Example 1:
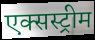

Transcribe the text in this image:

एक्सस्ट्रीम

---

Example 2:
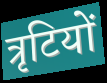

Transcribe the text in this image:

त्रृटियों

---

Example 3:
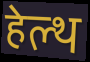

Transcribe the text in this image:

हेल्‍थ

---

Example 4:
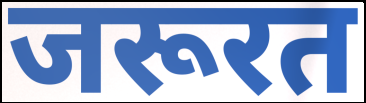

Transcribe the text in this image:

जरूरत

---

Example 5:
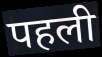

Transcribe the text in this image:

पहली